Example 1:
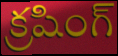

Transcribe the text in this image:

క్రషింగ్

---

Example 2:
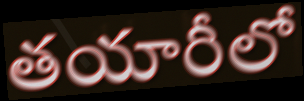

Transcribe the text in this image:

తయారీలో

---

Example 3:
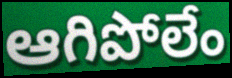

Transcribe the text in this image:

ఆగిపోలేం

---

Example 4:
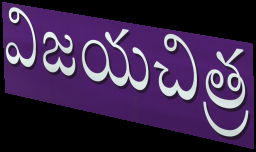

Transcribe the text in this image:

విజయచిత్ర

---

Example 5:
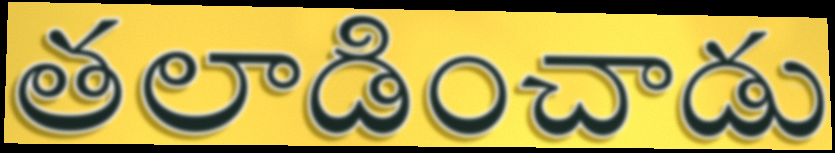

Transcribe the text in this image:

తలాడించాడు